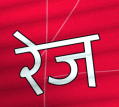
रेज